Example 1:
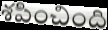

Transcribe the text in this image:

శపించింది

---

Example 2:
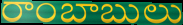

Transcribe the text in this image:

రాంబాబులు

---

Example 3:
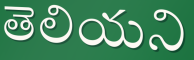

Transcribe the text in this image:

తెలియని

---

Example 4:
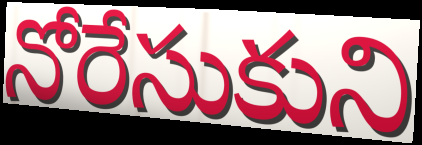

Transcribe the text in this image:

నోరేసుకుని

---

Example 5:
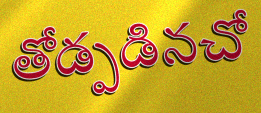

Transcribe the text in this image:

తోడ్పడినచో